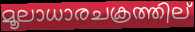
മൂലാധാരചക്രത്തില്